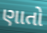
ણાતો